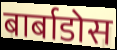
बार्बाडोस